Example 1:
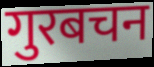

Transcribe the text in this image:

गुरबचन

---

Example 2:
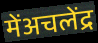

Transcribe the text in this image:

मेंअचलेंद्र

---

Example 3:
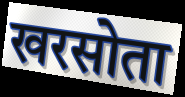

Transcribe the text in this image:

खरसोता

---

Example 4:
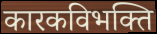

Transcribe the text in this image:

कारकविभक्ति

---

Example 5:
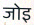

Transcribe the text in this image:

जोइ